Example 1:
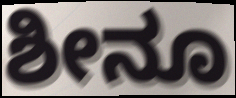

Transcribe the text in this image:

ಶೀನೂ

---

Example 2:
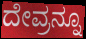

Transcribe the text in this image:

ದೇವ್ರನ್ನೂ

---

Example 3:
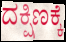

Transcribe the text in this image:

ದಕ್ಷಿಣಕ್ಕೆ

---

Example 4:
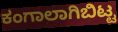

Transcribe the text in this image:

ಕಂಗಾಲಾಗಿಬಿಟ್ಟ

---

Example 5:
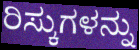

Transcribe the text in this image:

ರಿಸ್ಕುಗಳನ್ನು